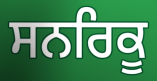
ਸਨਰਿਕੂ